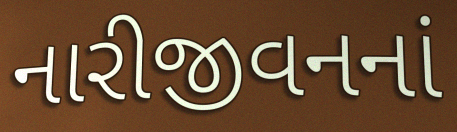
નારીજીવનનાં